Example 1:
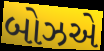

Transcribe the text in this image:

બોઝએ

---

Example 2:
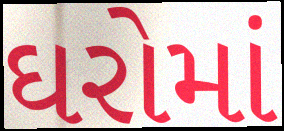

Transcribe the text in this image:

ઘરોમાં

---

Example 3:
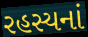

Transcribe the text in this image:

રહસ્યનાં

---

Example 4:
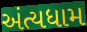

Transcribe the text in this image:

અંત્યધામ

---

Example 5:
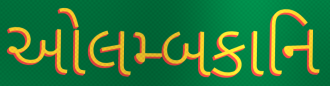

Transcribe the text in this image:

ઓલમ્બકાનિ